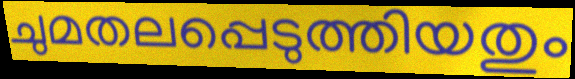
ചുമതലപ്പെടുത്തിയതും